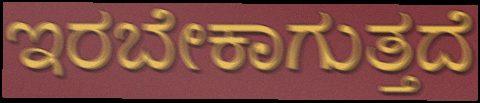
ಇರಬೇಕಾಗುತ್ತದೆ